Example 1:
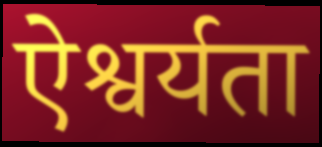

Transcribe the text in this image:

ऐश्वर्यता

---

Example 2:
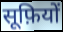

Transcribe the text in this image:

सूफ़ियों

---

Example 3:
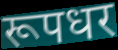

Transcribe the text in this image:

रूपधर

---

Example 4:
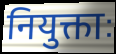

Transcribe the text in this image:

नियुक्ताः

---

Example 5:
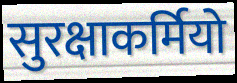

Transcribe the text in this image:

सुरक्षाकर्मियो